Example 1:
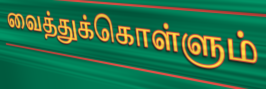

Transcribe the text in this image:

வைத்துக்கொள்ளும்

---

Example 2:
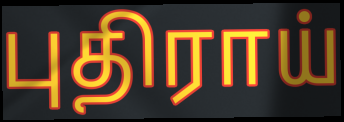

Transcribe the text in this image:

புதிராய்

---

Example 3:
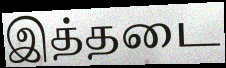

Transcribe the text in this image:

இத்தடை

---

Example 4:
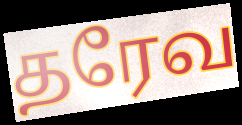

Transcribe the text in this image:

தரேவ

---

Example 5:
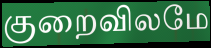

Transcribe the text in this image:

குறைவிலமே